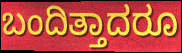
ಬಂದಿತ್ತಾದರೂ